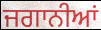
ਜਗਾਨੀਆਂ